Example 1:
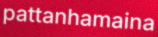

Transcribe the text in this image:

pattanhamaina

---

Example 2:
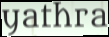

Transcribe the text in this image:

yathra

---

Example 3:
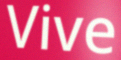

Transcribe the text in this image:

Vive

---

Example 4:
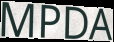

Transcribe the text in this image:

MPDA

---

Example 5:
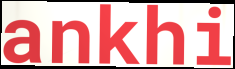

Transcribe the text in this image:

ankhi